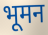
भूमन